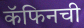
कॅफिनची